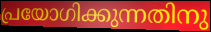
പ്രയോഗിക്കുന്നതിനു